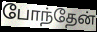
போந்தேன்